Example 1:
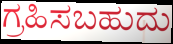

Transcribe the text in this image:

ಗ್ರಹಿಸಬಹುದು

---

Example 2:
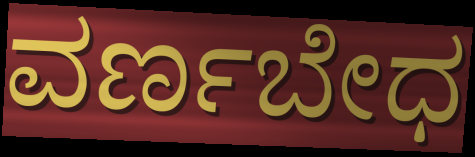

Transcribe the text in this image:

ವರ್ಣಬೇಧ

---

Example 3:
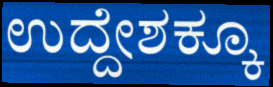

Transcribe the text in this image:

ಉದ್ದೇಶಕ್ಕೂ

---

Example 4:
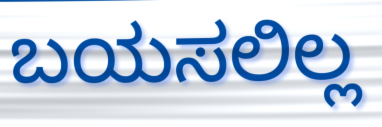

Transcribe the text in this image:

ಬಯಸಲಿಲ್ಲ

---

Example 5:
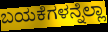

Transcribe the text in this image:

ಬಯಕೆಗಳನ್ನೆಲ್ಲಾ